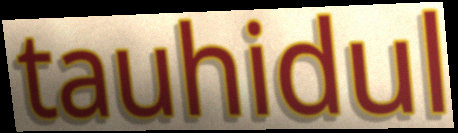
tauhidul